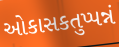
ઓકાસકતુપ્પન્નં